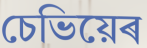
চেভিয়েৰ